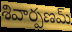
శివార్పణమ్